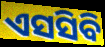
ଏସସିବି